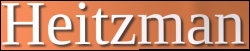
Heitzman